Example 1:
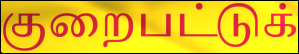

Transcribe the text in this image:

குறைபட்டுக்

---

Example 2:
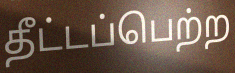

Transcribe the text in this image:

தீட்டப்பெற்ற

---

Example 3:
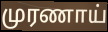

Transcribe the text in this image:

முரணாய்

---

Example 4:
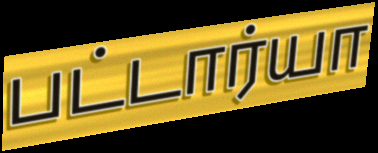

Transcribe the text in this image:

பட்டார்யா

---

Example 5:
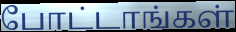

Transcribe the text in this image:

போட்டாங்கள்